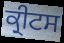
ਕ੍ਰੀਟਸ